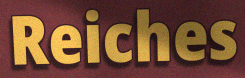
Reiches